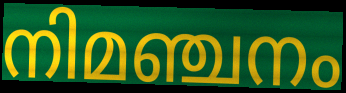
നിമഞ്ചനം